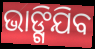
ଭାଙ୍ଗିଯିବ